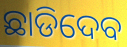
ଛାଡିଦେବ